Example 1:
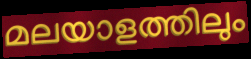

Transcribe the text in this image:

മലയാളത്തിലും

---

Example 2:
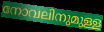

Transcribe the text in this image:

നോവലിനുമുള്ള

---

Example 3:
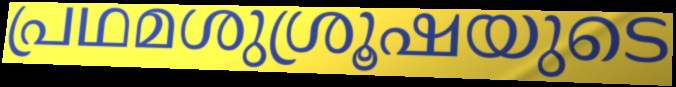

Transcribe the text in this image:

പ്രഥമശുശ്രൂഷയുടെ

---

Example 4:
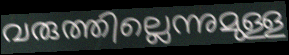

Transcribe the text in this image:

വരുത്തില്ലെന്നുമുള്ള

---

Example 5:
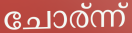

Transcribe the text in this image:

ചോര്ന്ന്